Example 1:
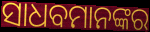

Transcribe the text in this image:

ସାଧବମାନଙ୍କର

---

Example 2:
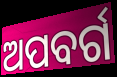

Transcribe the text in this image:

ଅପବର୍ଗ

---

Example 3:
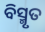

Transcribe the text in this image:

ବିସ୍ମୃତ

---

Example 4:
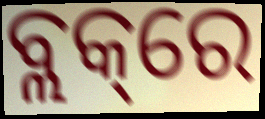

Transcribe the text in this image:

ବ୍ଲକ୍‌ରେ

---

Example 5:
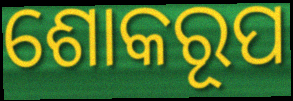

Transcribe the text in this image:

ଶୋକରୂପ